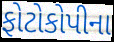
ફોટોકોપીના